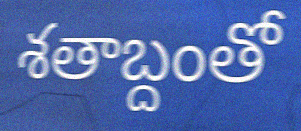
శతాబ్దంతో